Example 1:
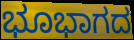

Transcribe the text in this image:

ಭೂಭಾಗದ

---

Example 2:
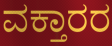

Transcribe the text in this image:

ವಕ್ತಾರರ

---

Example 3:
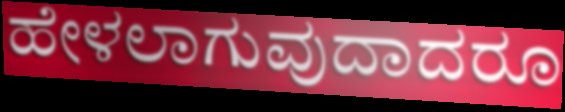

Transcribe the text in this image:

ಹೇಳಲಾಗುವುದಾದರೂ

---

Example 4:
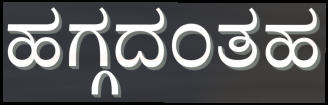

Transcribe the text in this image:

ಹಗ್ಗದಂತಹ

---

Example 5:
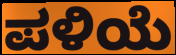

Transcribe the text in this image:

ಪಳಿಯೆ